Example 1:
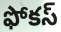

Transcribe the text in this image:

ఫోకస్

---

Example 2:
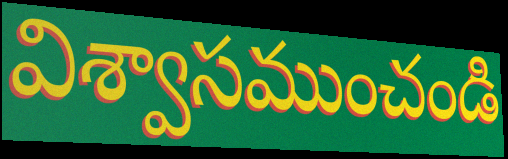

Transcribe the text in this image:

విశ్వాసముంచండి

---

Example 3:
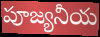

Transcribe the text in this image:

పూజ్యనీయ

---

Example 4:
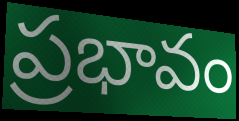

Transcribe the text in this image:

ప్రభావం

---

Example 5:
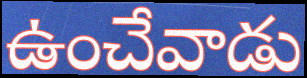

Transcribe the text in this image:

ఉంచేవాడు